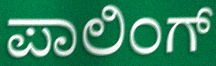
ಪಾಲಿಂಗ್